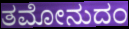
ತಮೋನುದಂ